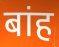
बांह